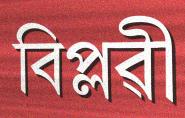
বিপ্লৱী